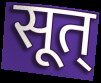
सूत्